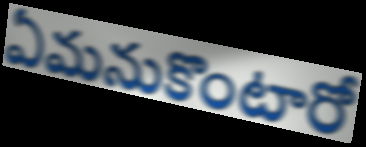
ఏమనుకొంటారో